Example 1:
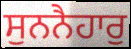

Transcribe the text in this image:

ਸੁਨਨੈਹਾਰੁ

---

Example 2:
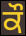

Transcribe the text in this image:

ਕੌ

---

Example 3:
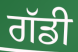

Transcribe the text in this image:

ਗੱਡੀ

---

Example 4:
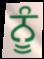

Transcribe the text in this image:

ਨੂੰ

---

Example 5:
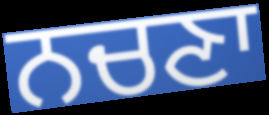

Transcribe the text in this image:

ਨਚਣਾ